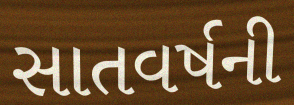
સાતવર્ષની